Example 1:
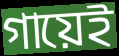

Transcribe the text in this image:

গায়েই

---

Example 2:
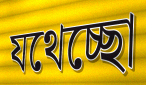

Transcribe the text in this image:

যথেচ্ছো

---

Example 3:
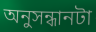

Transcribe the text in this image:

অনুসন্ধানটা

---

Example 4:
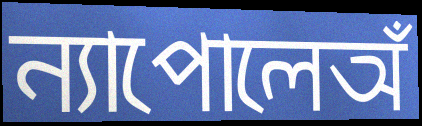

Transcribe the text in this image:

ন্যাপোলেঅঁ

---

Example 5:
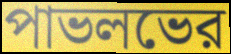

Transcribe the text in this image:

পাভলভের